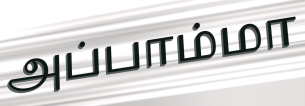
அப்பாம்மா